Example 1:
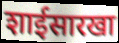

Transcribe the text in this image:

शाईसारखा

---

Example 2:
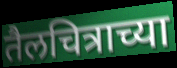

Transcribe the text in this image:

तैलचित्राच्या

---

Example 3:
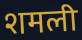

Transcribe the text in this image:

शमली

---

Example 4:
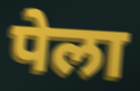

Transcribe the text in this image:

पेला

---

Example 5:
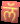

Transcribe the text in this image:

लॅ